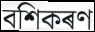
বশিকৰণ